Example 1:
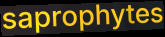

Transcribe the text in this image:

saprophytes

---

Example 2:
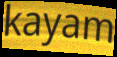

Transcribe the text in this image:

kayam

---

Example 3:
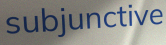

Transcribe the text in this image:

subjunctive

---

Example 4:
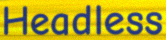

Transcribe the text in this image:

Headless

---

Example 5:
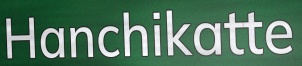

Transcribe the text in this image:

Hanchikatte